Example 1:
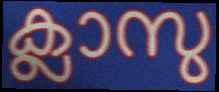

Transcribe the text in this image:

ക്ലാസു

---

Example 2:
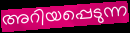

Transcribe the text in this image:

അറിയപ്പെടുന്ന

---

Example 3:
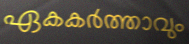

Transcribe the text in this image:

ഏകകർത്താവും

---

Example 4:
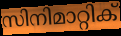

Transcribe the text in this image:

സിനിമാറ്റിക്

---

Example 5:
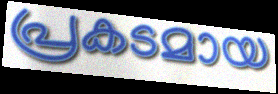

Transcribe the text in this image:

പ്രകടമായ